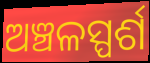
ଅଞ୍ଚଳସ୍ପର୍ଶ